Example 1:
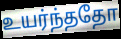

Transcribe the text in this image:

உயர்ந்ததோ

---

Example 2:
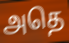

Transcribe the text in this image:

அதெ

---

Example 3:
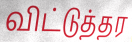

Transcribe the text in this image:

விட்டுத்தர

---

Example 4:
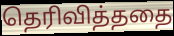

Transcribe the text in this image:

தெரிவித்ததை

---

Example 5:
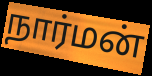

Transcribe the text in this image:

நார்மன்